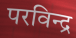
परविन्द्र